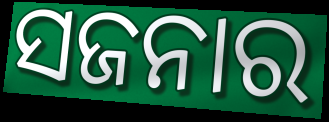
ସଜନାର